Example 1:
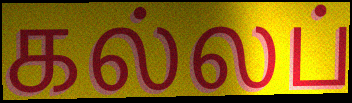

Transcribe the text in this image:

கல்லப்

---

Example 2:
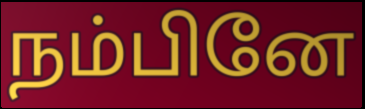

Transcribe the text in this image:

நம்பினே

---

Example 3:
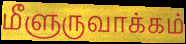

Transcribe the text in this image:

மீளுருவாக்கம்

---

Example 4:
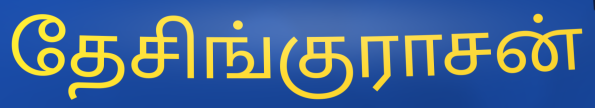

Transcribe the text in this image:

தேசிங்குராசன்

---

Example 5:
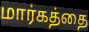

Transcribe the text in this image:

மார்கத்தை